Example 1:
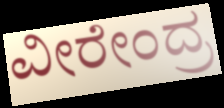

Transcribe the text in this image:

ವೀರೇಂದ್ರ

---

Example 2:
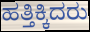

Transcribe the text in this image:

ಹತ್ತಿಕ್ಕಿದರು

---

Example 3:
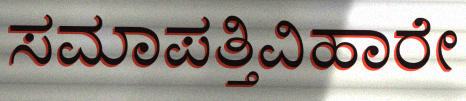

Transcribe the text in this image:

ಸಮಾಪತ್ತಿವಿಹಾರೇ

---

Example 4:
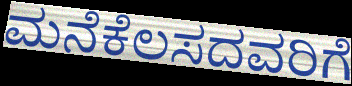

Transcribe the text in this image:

ಮನೆಕೆಲಸದವರಿಗೆ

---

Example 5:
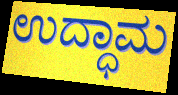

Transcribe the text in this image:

ಉದ್ಧಾಮ